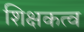
शिक्षकत्व